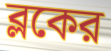
ব্লকের